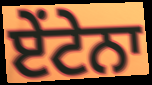
ਏਂਟੇਨਾ